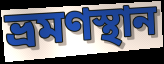
ভ্রমণস্থান